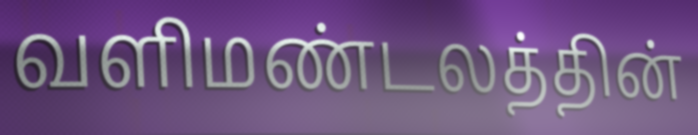
வளிமண்டலத்தின்